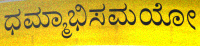
ಧಮ್ಮಾಭಿಸಮಯೋ